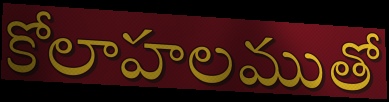
కోలాహలముతో